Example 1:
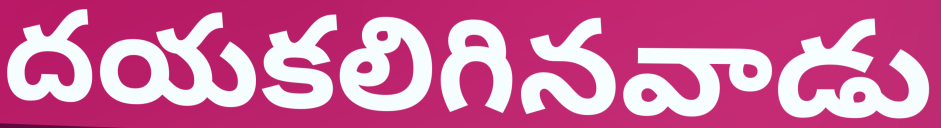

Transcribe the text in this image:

దయకలిగినవాడు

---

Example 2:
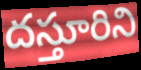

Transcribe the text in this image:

దస్తూరిని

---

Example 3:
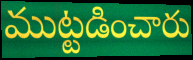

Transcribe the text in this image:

ముట్టడించారు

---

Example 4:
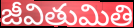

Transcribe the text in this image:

జీవితుమితి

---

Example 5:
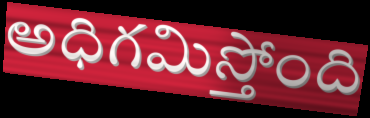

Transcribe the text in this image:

అధిగమిస్తోంది